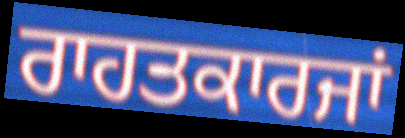
ਰਾਹਤਕਾਰਜਾਂ